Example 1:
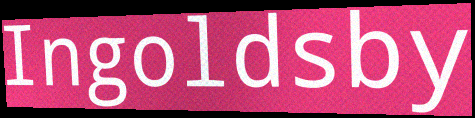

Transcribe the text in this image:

Ingoldsby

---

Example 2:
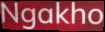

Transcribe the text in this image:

Ngakho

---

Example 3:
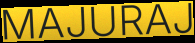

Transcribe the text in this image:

MAJURAJ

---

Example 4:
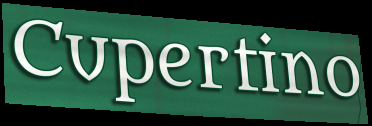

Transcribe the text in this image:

Cupertino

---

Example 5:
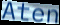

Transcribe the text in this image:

Aten